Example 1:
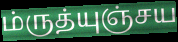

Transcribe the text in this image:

ம்ருத்யுஞ்சய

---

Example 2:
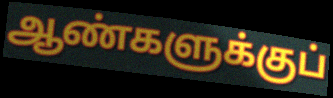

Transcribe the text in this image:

ஆண்களுக்குப்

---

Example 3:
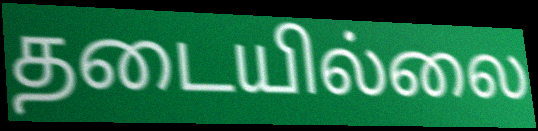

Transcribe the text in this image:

தடையில்லை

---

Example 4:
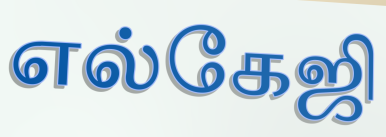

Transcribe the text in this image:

எல்கேஜி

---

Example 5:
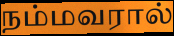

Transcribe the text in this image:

நம்மவரால்